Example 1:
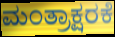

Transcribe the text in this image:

ಮಂತ್ರಾಕ್ಷರಕೆ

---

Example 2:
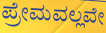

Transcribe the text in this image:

ಪ್ರೇಮವಲ್ಲವೇ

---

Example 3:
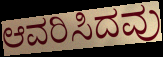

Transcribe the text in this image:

ಆವರಿಸಿದವು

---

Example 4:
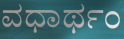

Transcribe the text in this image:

ವಧಾರ್ಥಂ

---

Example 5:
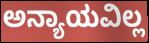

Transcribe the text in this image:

ಅನ್ಯಾಯವಿಲ್ಲ